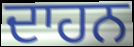
ਦਾਹਨ